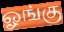
ஓங்கு